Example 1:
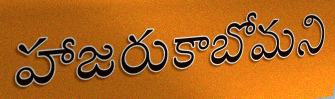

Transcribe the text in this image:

హాజరుకాబోమని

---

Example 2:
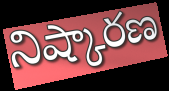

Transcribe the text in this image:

నిష్కారణ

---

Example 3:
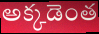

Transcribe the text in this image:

అక్కడెంత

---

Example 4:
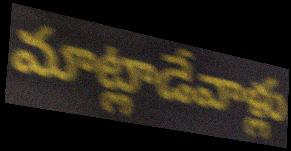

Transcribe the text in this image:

మాట్లాడేవాళ్లు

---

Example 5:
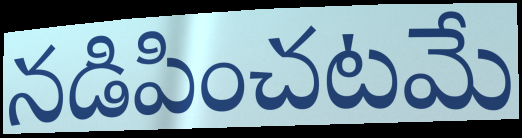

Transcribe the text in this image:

నడిపించటమే